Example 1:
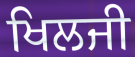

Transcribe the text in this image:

ਖਿਲਜੀ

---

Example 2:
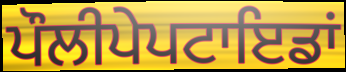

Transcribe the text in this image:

ਪੌਲੀਪੇਪਟਾਇਡਾਂ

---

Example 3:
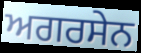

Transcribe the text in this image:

ਅਗਰਸੇਨ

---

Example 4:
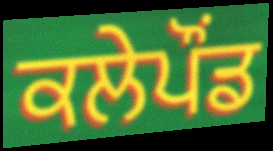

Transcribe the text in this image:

ਕਲੇਪੌਂਡ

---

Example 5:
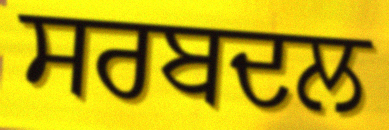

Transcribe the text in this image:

ਸਰਬਦਲ